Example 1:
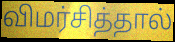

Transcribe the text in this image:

விமர்சித்தால்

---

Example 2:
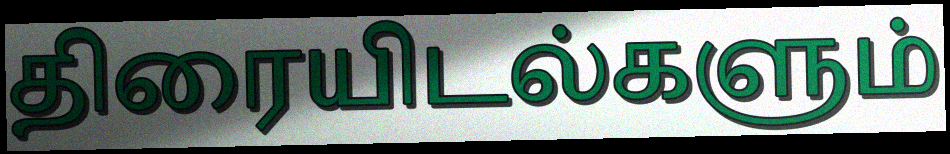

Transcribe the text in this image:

திரையிடல்களும்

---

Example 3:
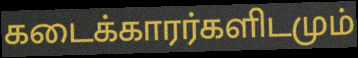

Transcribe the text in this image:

கடைக்காரர்களிடமும்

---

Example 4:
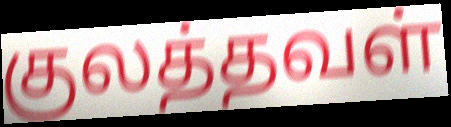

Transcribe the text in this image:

குலத்தவள்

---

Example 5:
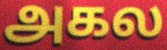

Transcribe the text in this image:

அகல